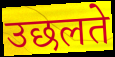
उछलते